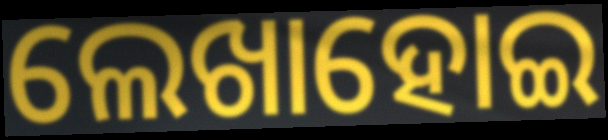
ଲେଖାହୋଇ